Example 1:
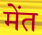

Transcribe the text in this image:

मेंत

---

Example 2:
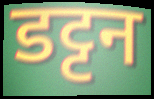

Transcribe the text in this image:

डट्टन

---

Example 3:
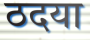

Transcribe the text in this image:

ठदया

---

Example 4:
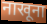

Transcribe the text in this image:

नाखूना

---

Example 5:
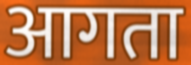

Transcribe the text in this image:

आगता